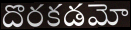
దొరకడమో